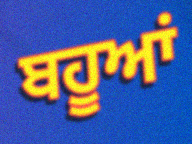
ਬਹੂਆਂ